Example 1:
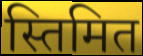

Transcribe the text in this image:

स्तिमित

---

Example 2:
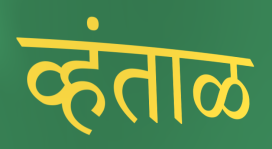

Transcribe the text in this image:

व्हंताळ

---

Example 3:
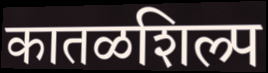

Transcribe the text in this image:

कातळशिल्प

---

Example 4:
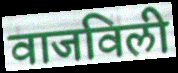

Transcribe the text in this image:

वाजविली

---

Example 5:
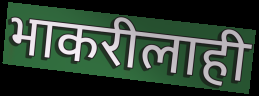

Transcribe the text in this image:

भाकरीलाही